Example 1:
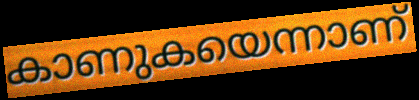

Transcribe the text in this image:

കാണുകയെന്നാണ്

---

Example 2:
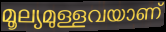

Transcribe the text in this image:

മൂല്യമുള്ളവയാണ്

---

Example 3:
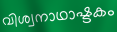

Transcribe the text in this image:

വിശ്വനാഥാഷ്ടകം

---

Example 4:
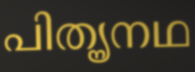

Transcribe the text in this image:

പിതൄനഥ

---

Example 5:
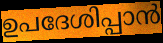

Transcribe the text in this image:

ഉപദേശിപ്പാൻ